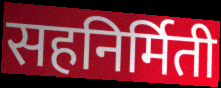
सहनिर्मिती